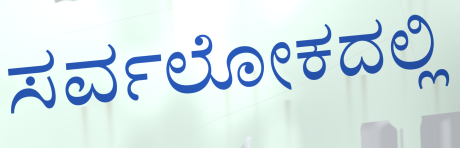
ಸರ್ವಲೋಕದಲ್ಲಿ